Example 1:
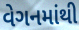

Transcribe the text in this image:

વેગનમાંથી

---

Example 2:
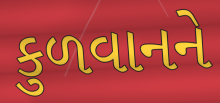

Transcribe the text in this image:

કુળવાનને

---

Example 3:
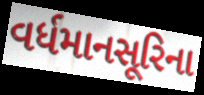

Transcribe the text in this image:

વર્ધમાનસૂરિના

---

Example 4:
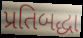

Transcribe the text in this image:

પ્રતિબદ્ધા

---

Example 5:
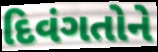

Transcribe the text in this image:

દિવંગતોને